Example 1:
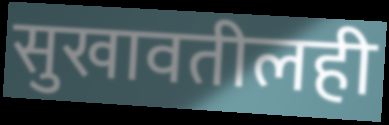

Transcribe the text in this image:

सुखावतीलही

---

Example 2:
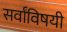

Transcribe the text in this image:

सर्वांविषयी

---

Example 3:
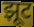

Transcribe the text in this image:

झूट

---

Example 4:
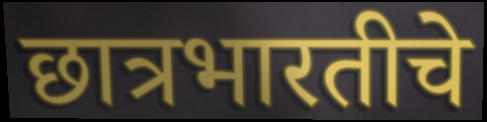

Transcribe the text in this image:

छात्रभारतीचे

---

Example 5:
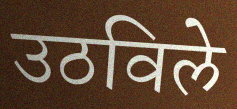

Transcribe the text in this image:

उठविले